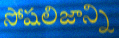
సోషలిజాన్ని